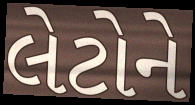
લેટોને